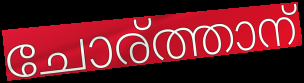
ചോര്ത്താന്